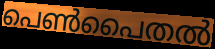
പെൺപൈതൽ